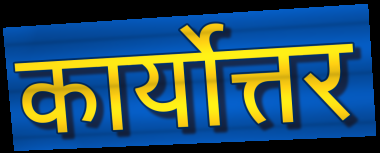
कार्योत्तर